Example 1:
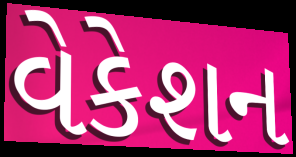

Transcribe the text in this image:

વેકેશન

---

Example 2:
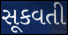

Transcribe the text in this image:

સૂકવતી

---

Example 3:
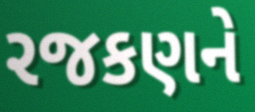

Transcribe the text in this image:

રજકણને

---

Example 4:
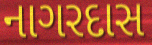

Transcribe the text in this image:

નાગરદાસ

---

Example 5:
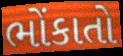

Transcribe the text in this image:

ભોંકાતો